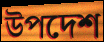
উপদেশ